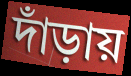
দাঁড়ায়